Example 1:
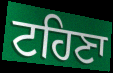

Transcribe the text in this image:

ਟਹਿਣਾ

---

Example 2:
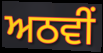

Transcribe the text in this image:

ਅਠਵੀਂ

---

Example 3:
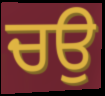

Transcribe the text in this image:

ਚਉ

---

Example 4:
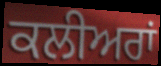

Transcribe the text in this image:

ਕਲੀਅਰਾਂ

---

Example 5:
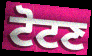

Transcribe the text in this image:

ਟੋਟਣ